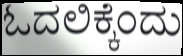
ಓದಲಿಕ್ಕೆಂದು